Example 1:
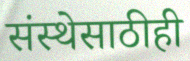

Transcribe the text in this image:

संस्थेसाठीही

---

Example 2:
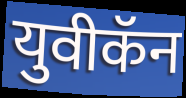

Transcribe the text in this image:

युवीकॅन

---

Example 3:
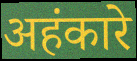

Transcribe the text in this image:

अहंकारे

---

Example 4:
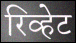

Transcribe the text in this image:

रिव्हेट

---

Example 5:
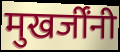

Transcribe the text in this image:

मुखर्जींनी